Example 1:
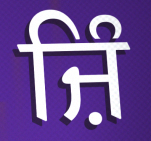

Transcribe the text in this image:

ਜ਼ਿੰ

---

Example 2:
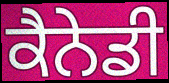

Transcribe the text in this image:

ਕੈਨੇਡੀ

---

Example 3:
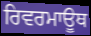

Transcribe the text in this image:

ਰਿਵਰਮਾਊਥ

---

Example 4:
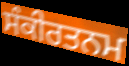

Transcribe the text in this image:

ਸੰਕੀਰਤਨਮ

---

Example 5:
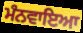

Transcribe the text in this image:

ਮੰਨਵਾਇਆ